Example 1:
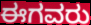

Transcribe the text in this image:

ಈಗವರು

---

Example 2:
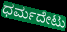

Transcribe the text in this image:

ಧರ್ಮದೇಟು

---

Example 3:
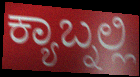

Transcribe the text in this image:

ಕ್ಯಾಬ್ನಲ್ಲಿ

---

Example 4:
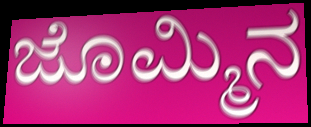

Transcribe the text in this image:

ಜೊಮ್ಮಿನ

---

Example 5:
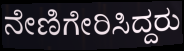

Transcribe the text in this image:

ನೇಣಿಗೇರಿಸಿದ್ದರು